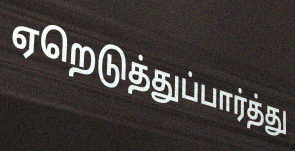
ஏறெடுத்துப்பார்த்து